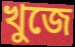
খুজে